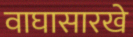
वाघासारखे